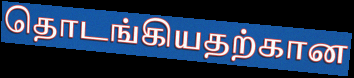
தொடங்கியதற்கான